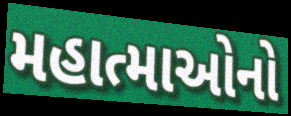
મહાત્માઓનો